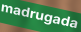
madrugada